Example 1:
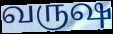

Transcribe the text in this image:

வருஷ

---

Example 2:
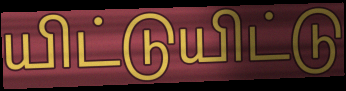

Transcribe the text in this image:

யிட்டுயிட்டு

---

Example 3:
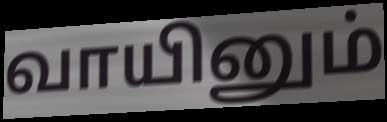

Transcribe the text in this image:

வாயினும்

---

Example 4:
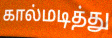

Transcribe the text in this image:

கால்மடித்து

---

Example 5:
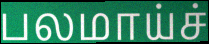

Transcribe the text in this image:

பலமாய்ச்